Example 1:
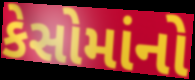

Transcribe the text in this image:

કેસોમાંનો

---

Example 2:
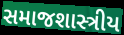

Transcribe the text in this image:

સમાજશાસ્ત્રીય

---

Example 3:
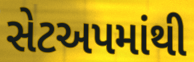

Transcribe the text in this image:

સેટઅપમાંથી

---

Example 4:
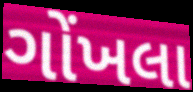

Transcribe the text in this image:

ગોંખલા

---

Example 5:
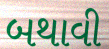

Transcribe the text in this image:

બથાવી